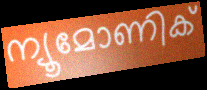
ന്യൂമോണിക്